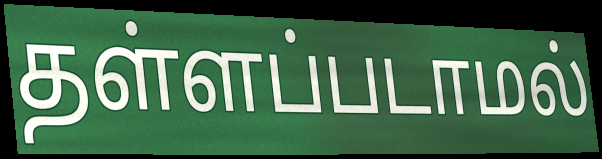
தள்ளப்படாமல்